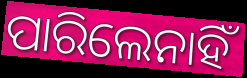
ପାରିଲେନାହିଁ